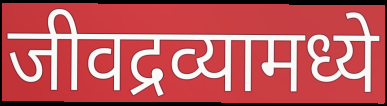
जीवद्रव्यामध्ये